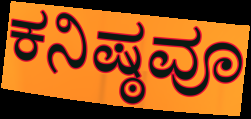
ಕನಿಷ್ಠವೂ